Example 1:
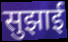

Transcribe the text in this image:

सुझाई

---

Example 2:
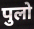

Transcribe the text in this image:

पुलो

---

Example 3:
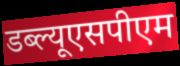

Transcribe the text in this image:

डब्ल्यूएसपीएम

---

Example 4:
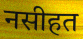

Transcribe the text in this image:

नसीहत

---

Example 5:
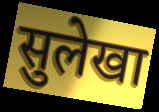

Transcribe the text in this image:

सुलेखा